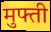
मुफ्ती